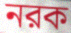
নরক